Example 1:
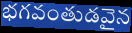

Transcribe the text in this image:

భగవంతుడవైన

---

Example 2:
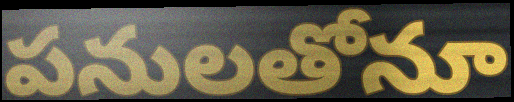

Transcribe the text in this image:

పనులతోనూ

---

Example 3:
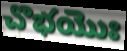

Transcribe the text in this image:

చొభయొః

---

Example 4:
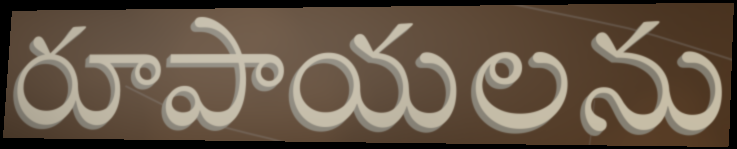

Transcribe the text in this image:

రూపాయలను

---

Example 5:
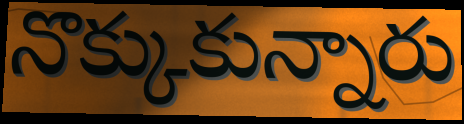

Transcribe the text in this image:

నొక్కుకున్నారు